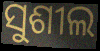
ସୁଶୀଲ